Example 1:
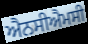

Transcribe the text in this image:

ਐਨਸੀਐਮਸੀ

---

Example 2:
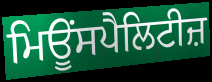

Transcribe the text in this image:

ਮਿਊਂਸਪੈਲਿਟੀਜ਼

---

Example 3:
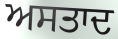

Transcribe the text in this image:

ਅਸਤਾਦ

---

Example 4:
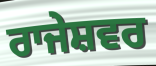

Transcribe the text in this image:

ਰਾਜੇਸ਼ਵਰ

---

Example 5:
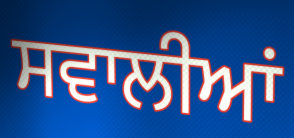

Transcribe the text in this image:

ਸਵਾਲੀਆਂ